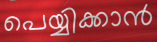
പെയ്യിക്കാൻ